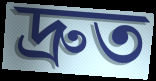
দ্ৰুত